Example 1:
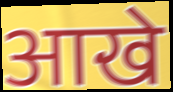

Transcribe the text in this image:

आखे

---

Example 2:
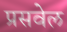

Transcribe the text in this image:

प्रसवेल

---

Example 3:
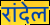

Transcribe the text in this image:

रांदेल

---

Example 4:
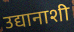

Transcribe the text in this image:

उद्यानाशी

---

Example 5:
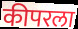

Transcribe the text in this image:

कीपरला